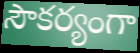
సౌకర్యంగా